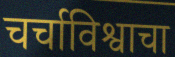
चर्चाविश्वाचा